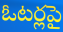
ఓటర్లపై